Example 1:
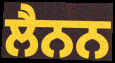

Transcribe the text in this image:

ਲੈਨਨ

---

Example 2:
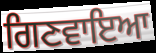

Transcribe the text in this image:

ਗਿਣਵਾਇਆ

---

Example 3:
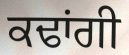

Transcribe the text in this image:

ਕਢਾਂਗੀ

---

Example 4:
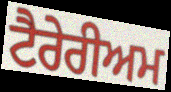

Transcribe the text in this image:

ਟੈਰੇਰੀਅਮ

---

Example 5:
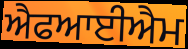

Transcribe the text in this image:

ਐਫਆਈਐਮ